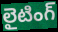
లైటింగ్